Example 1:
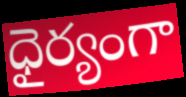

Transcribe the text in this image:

ధైర్యంగా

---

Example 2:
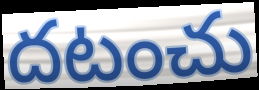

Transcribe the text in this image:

దటంచు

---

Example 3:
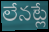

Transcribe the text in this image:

లేనట్లే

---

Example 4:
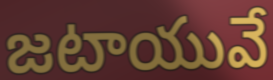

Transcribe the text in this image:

జటాయువే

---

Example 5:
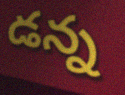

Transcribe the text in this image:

డన్న